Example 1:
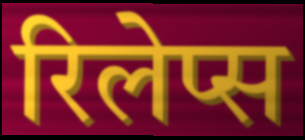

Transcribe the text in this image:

रिलेप्स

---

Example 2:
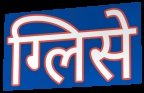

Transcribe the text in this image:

ग्लिसे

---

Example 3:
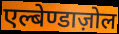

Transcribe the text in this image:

एल्बेण्डाज़ोल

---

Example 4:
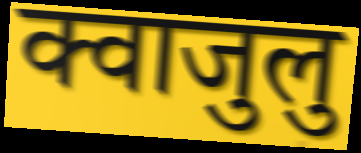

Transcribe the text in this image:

क्वाजुलु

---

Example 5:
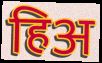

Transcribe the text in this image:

हिअ